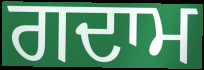
ਗਦਾਮ